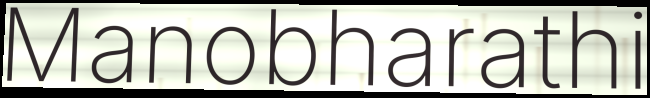
Manobharathi